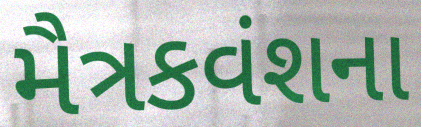
મૈત્રકવંશના